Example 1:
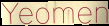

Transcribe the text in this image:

Yeomen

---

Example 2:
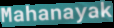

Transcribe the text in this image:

Mahanayak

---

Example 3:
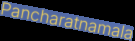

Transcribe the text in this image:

Pancharatnamala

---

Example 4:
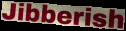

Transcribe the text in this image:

Jibberish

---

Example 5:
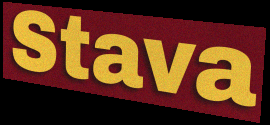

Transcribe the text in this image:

Stava